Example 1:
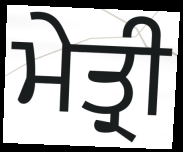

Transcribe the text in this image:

ਮੇਤ੍ਰੀ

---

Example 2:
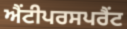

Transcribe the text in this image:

ਐਂਟੀਪਰਸਪਰੈਂਟ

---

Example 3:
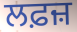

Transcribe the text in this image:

ਲਫ਼ਜ਼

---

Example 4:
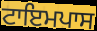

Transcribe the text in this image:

ਟਾਇਮਪਾਸ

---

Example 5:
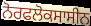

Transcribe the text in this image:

ਨੋਰਫਲੋਕਸਾਸੀਨ